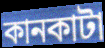
কানকাটা